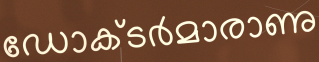
ഡോക്ടർമാരാണു